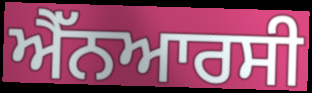
ਐੱਨਆਰਸੀ